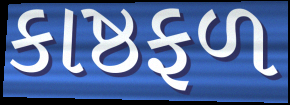
કાષ્ઠફળ